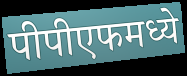
पीपीएफमध्ये